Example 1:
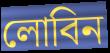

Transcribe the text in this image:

লোবিন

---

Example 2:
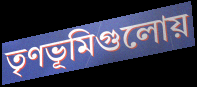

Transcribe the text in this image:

তৃণভূমিগুলোয়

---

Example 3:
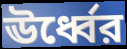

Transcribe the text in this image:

ঊর্ধ্বের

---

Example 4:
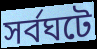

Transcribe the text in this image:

সর্বঘটে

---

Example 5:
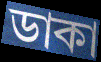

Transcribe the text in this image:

ডাকা